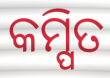
କମ୍ପିତ